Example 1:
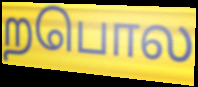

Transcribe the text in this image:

றபொல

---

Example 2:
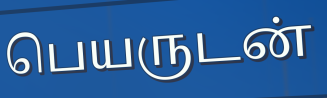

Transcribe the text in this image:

பெயருடன்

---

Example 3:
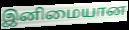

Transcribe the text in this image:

இனிமையான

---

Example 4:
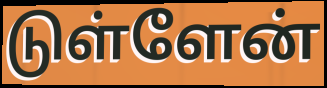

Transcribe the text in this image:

டுள்ளேன்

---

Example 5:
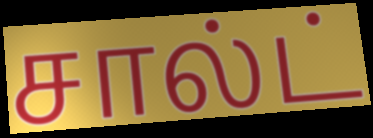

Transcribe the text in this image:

சால்ட்